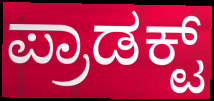
ಪ್ರಾಡಕ್ಟ್